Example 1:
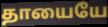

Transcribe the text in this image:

தாயையே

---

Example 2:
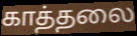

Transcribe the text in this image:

காத்தலை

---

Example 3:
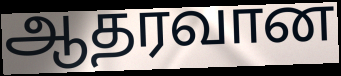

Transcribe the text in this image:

ஆதரவான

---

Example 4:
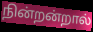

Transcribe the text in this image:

நின்றன்றால்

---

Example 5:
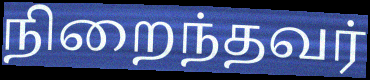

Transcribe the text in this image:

நிறைந்தவர்